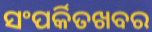
ସଂପର୍କିତଖବର